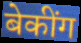
बेकींग